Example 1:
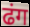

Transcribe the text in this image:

ढंग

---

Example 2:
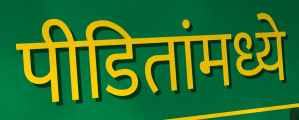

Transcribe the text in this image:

पीडितांमध्ये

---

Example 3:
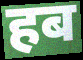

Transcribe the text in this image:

हब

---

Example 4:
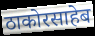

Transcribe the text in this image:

ठाकोरसाहेब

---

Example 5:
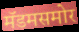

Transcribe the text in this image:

मॅडमसमोर